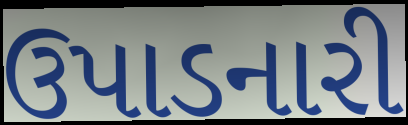
ઉપાડનારી